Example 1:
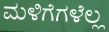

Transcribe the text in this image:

ಮಳಿಗೆಗಳೆಲ್ಲ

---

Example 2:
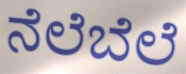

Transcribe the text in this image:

ನೆಲೆಬೆಲೆ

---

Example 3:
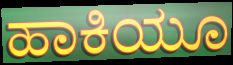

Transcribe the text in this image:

ಹಾಕಿಯೂ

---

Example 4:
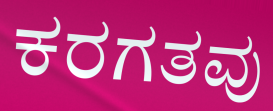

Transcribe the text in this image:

ಕರಗತವು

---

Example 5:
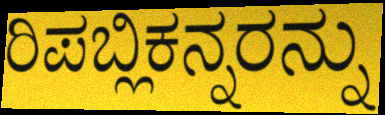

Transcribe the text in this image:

ರಿಪಬ್ಲಿಕನ್ನರನ್ನು